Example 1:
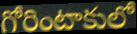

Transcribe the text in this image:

గోరింటాకులో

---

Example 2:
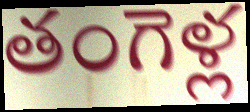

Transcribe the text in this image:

తంగెళ్ల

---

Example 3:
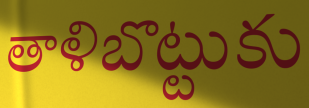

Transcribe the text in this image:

తాళిబొట్టుకు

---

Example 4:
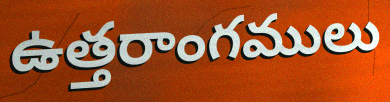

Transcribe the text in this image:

ఉత్తరాంగములు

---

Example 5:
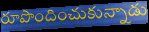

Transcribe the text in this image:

రూపొందించుకున్నాడు